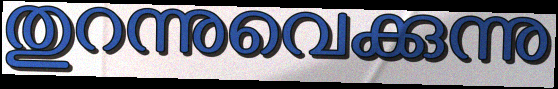
തുറന്നുവെക്കുന്നു